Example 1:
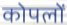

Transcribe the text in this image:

कोपलों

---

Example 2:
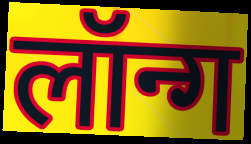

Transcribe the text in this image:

लॉन्ग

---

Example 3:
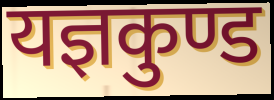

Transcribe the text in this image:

यज्ञकुण्ड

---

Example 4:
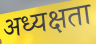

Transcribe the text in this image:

अध्यक्षता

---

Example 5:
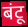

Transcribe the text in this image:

बंटू